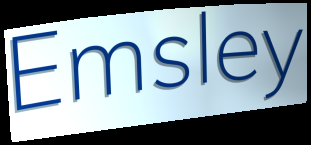
Emsley